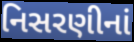
નિસરણીનાં